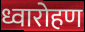
ध्वारोहण